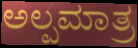
ಅಲ್ಪಮಾತ್ರ